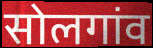
सोलगांव